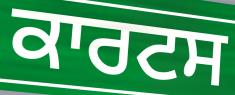
ਕਾਰਟਸ